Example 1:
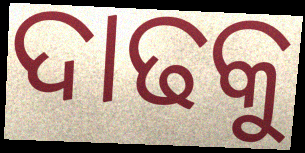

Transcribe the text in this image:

ଦାଢକୁ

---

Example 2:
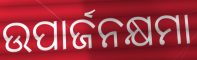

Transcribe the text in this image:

ଉପାର୍ଜନକ୍ଷମା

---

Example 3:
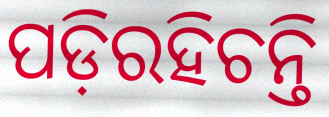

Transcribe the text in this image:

ପଡ଼ିରହିଚନ୍ତି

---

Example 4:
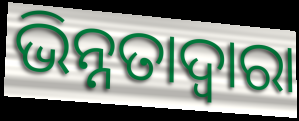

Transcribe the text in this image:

ଭିନ୍ନତାଦ୍ୱାରା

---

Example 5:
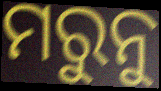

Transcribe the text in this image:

ମରୁନୁ